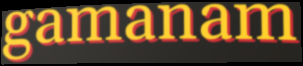
gamanam